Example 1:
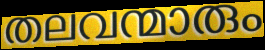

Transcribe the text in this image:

തലവന്മാരും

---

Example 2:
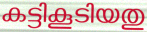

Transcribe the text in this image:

കട്ടികൂടിയതു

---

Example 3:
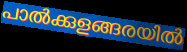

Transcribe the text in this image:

പാൽക്കുളങ്ങരയിൽ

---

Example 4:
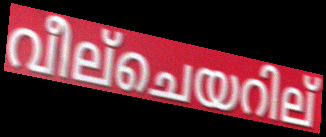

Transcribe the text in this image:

വീല്ചെയറില്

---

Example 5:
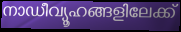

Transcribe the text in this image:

നാഡീവ്യൂഹങ്ങളിലേക്ക്